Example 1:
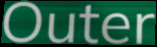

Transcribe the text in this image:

Outer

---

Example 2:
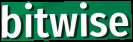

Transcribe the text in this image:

bitwise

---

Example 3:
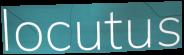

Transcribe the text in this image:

locutus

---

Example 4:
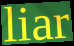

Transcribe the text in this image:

liar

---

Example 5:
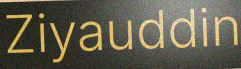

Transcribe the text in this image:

Ziyauddin